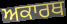
ਅਕਾਰਥ